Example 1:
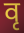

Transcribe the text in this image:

वृ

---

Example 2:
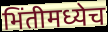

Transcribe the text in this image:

भिंतीमध्येच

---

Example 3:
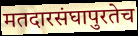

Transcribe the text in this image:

मतदारसंघापुरतेच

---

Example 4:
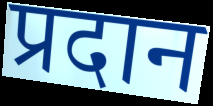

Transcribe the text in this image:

प्रदान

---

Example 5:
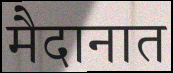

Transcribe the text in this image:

मैदानात